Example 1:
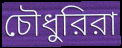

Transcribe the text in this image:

চৌধুরিরা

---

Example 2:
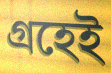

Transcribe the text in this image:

গ্রহেই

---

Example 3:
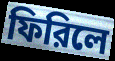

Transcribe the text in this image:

ফিরিলে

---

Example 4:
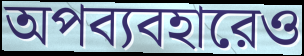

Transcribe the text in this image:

অপব্যবহারেও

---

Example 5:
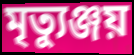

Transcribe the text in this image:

মৃত্যুঞ্জয়